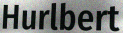
Hurlbert